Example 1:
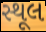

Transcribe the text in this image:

સ્થૂલ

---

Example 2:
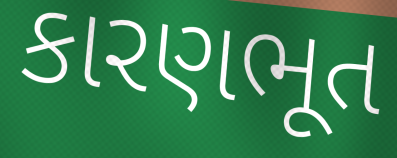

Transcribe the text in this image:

કારણભૂત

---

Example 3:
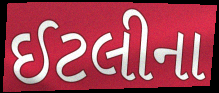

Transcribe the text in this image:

ઈટલીના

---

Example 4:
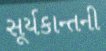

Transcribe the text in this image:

સૂર્યકાન્તની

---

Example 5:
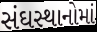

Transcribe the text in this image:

સંઘસ્થાનોમાં